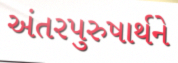
અંતરપુરુષાર્થને